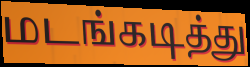
மடங்கடித்து